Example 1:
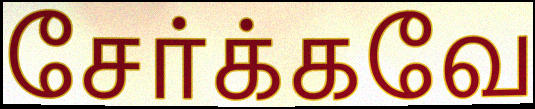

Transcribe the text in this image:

சேர்க்கவே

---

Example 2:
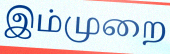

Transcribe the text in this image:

இம்முறை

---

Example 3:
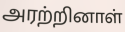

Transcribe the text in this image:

அரற்றினாள்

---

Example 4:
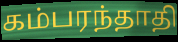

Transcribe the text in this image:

கம்பரந்தாதி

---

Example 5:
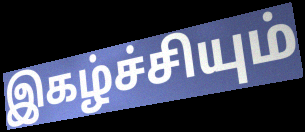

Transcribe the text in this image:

இகழ்ச்சியும்